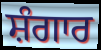
ਸ਼ੰਗਾਰ